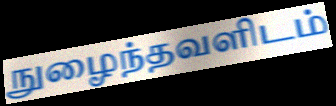
நுழைந்தவளிடம்